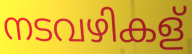
നടവഴികള്